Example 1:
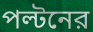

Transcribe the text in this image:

পল্টনের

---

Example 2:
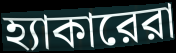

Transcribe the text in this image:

হ্যাকারেরা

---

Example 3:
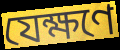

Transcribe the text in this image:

যেক্ষণে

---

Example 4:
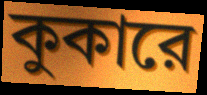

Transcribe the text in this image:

কুকারে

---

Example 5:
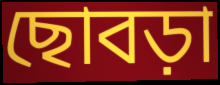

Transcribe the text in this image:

ছোবড়া